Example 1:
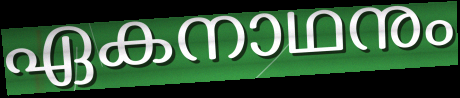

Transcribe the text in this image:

ഏകനാഥനും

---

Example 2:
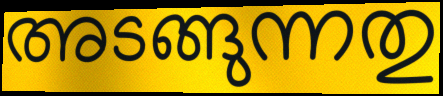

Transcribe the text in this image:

അടങ്ങുന്നതു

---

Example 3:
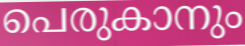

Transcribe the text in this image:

പെരുകാനും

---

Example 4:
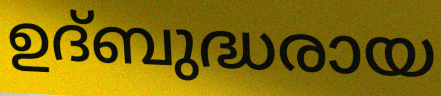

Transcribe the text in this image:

ഉദ്ബുദ്ധരായ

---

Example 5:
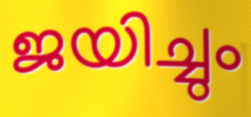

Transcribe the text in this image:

ജയിച്ചും